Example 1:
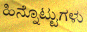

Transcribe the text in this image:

ಹಿನ್ನೊಟ್ಟುಗಳು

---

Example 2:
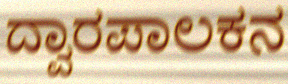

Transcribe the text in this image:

ದ್ವಾರಪಾಲಕನ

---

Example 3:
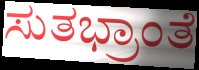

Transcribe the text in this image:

ಸುತಭ್ರಾಂತೆ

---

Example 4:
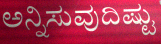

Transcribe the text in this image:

ಅನ್ನಿಸುವುದಿಷ್ಟು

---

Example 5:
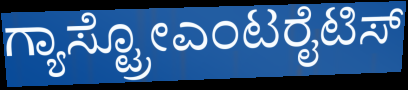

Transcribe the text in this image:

ಗ್ಯಾಸ್ಟ್ರೋಎಂಟರೈಟಿಸ್